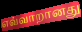
எவ்வாறானது